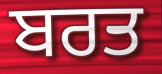
ਬਰਤ